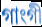
গাংগী